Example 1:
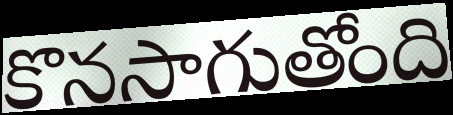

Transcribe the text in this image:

కొనసాగుతోంది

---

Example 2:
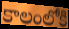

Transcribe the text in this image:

కాలంలోకి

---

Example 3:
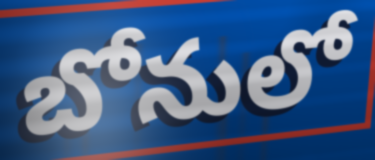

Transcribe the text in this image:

బోనులో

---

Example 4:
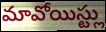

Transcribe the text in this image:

మావోయిస్ట్లు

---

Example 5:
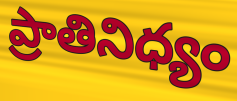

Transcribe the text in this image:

ప్రాతినిధ్యం